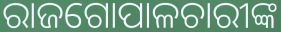
ରାଜଗୋପାଳଚାରୀଙ୍କ